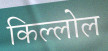
किल्लोल